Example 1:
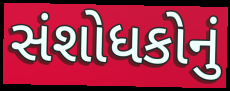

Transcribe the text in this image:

સંશોધકોનું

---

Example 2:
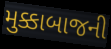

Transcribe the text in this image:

મુક્કાબાજની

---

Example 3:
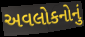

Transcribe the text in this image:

અવલોકનોનું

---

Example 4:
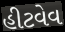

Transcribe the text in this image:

હીટવેવ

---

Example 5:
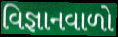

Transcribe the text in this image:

વિજ્ઞાનવાળો